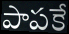
పాపకే